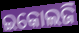
ଇକୋଲଜି